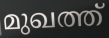
മുഖത്ത്